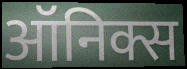
ऑनिक्स